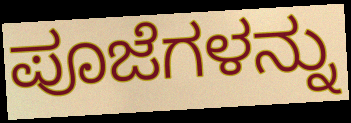
ಪೂಜೆಗಳನ್ನು